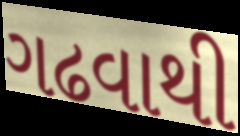
ગઢવાથી